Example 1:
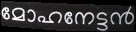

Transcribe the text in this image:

മോഹനേട്ടൻ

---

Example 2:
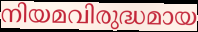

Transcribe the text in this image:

നിയമവിരുദ്ധമായ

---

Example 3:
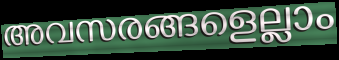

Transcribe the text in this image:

അവസരങ്ങളെല്ലാം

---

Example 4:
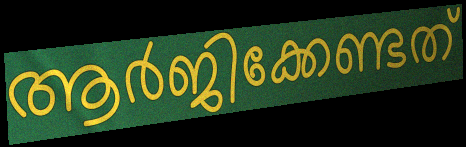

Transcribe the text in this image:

ആർജിക്കേണ്ടത്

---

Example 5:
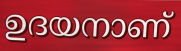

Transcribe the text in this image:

ഉദയനാണ്